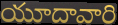
యూదావారి